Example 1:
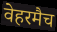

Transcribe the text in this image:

वेहरमैच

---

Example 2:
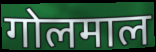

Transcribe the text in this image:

गोलमाल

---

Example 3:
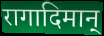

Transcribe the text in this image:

रागादिमान्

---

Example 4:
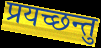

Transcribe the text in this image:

प्रयच्छन्तु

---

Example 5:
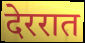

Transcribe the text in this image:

देररात